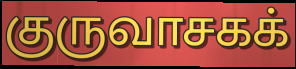
குருவாசகக்